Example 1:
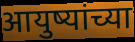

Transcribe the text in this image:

आयुष्यांच्या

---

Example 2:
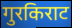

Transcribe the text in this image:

गुरकिराट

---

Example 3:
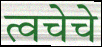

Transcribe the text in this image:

त्वचेचे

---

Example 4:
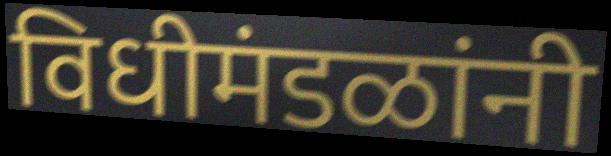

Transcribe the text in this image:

विधीमंडळांनी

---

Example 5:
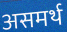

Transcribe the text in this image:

असमर्थ